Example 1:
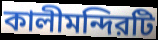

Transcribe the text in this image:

কালীমন্দিরটি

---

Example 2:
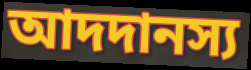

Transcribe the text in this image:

আদদানস্য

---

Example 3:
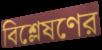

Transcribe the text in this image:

বিশ্লেষণের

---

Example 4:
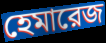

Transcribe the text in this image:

হেমারেজ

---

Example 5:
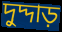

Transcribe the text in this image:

দুদ্দাড়